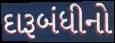
દારૂબંધીનો